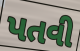
પતવી